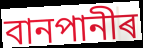
বানপানীৰ